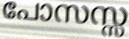
പോസസ്സ